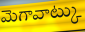
మెగావాట్కు